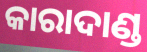
କାରାଦାଣ୍ଡ